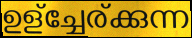
ഉള്ച്ചേര്ക്കുന്ന